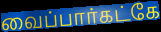
வைப்பார்கட்கே